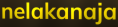
nelakanaja